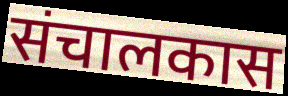
संचालकास